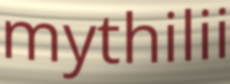
mythilii